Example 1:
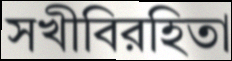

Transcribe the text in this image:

সখীবিরহিতা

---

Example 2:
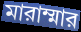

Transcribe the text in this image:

মারাম্মার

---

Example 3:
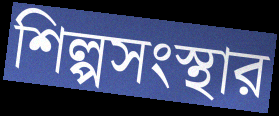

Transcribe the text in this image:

শিল্পসংস্থার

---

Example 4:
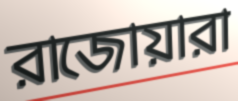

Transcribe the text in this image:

রাজোয়ারা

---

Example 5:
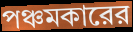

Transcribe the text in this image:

পঞ্চমকারের